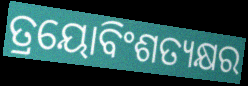
ତ୍ରୟୋବିଂଶତ୍ୟକ୍ଷର